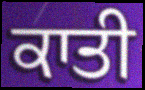
ਕਾਤੀ